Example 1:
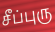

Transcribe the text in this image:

சீப்புரு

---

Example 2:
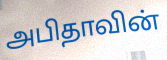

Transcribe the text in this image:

அபிதாவின்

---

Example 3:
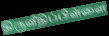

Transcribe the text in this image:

திருவீதிப்பிள்ளை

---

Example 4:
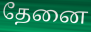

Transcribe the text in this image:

தேனை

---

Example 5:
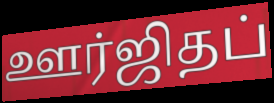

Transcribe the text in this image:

ஊர்ஜிதப்